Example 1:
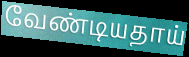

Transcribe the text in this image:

வேண்டியதாய்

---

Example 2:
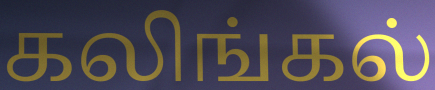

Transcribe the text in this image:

கலிங்கல்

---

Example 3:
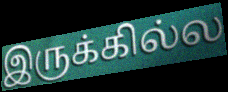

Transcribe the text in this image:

இருக்கில்ல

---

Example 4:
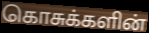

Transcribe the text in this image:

கொசுக்களின்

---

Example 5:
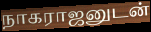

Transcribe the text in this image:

நாகராஜனுடன்